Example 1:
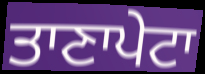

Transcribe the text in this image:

ਤਾਣਾਪੇਟਾ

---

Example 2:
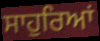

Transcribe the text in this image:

ਸਾਹੁਰਿਆਂ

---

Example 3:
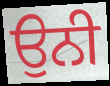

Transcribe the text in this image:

ਉਨੀ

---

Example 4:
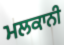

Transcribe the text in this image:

ਮਲਕਾਨੀ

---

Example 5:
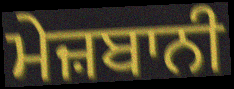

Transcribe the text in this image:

ਮੇਜ਼ਬਾਨੀ